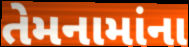
તેમનામાંના